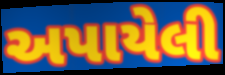
અપાયેલી